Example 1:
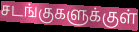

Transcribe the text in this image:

சடங்குகளுக்குள்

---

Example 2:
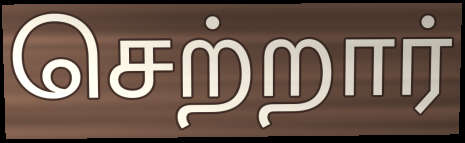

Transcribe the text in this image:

செற்றார்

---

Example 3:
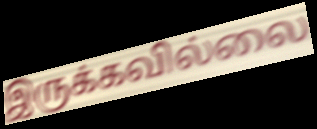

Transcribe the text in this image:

இருக்கவில்லை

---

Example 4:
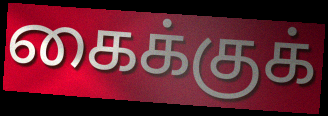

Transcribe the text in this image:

கைக்குக்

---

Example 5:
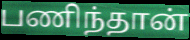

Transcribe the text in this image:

பணிந்தான்